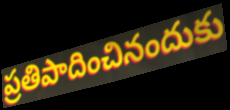
ప్రతిపాదించినందుకు